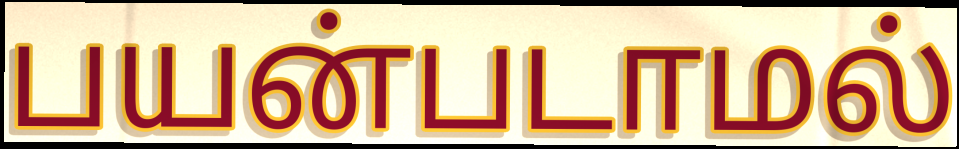
பயன்படாமல்